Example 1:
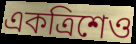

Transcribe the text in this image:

একত্রিশেও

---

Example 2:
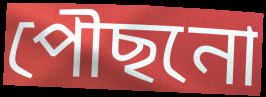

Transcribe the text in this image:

পৌছনো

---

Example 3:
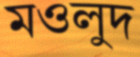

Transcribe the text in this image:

মওলুদ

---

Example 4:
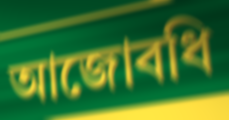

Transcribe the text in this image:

আজোবধি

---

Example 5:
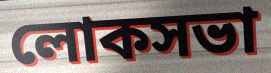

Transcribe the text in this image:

লোকসভা